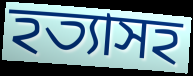
হত্যাসহ